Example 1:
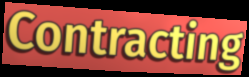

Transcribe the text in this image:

Contracting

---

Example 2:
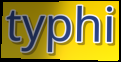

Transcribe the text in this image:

typhi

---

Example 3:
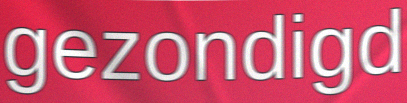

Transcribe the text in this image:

gezondigd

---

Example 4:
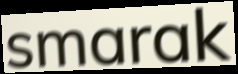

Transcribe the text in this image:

smarak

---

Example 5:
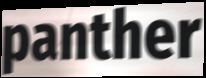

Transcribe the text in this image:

panther